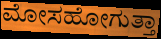
ಮೋಸಹೋಗುತ್ತಾ